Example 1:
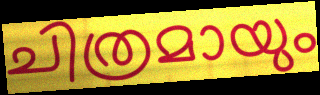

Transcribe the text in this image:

ചിത്രമായും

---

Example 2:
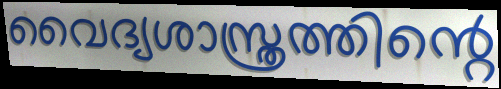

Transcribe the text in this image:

വൈദ്യശാസ്ത്രത്തിന്റെ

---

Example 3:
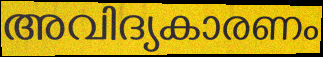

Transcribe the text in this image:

അവിദ്യകാരണം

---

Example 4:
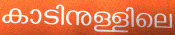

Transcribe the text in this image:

കാടിനുള്ളിലെ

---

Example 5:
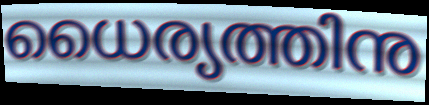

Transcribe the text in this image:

ധൈര്യത്തിനു